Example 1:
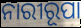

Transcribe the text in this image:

ନାରୀରୂପା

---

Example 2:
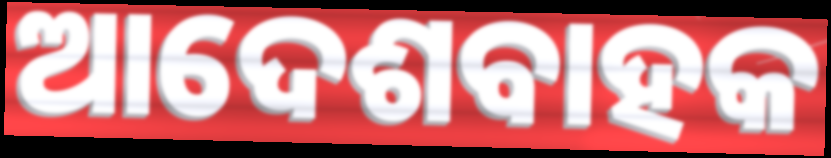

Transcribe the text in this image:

ଆଦେଶବାହକ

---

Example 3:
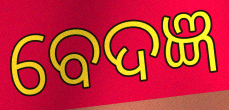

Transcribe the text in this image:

ବେଦଜ୍ଞ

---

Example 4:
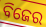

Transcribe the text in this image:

ବିଜେର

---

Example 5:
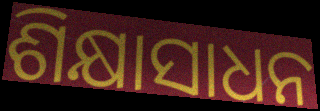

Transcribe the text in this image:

ଶିକ୍ଷାସାଧନ